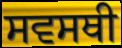
ਸਵਸਥੀ